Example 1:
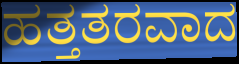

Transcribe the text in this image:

ಹತ್ತತರವಾದ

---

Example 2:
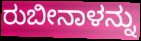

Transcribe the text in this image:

ರುಬೀನಾಳನ್ನು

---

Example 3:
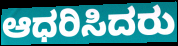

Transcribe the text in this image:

ಆಧರಿಸಿದರು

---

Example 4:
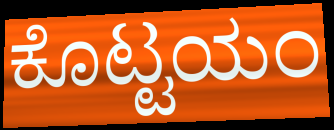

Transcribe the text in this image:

ಕೊಟ್ಟಯಂ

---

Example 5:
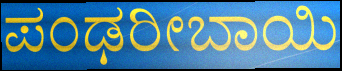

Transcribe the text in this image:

ಪಂಢರೀಬಾಯಿ